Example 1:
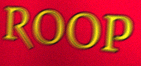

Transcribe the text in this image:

ROOP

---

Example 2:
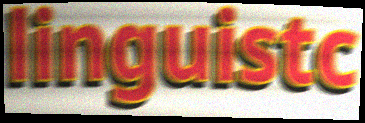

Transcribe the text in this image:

linguistc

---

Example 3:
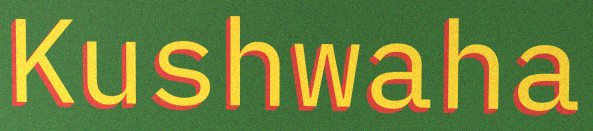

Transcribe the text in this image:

Kushwaha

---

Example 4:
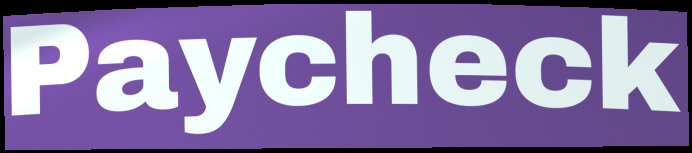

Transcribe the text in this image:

Paycheck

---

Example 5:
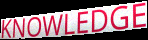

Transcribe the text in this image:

KNOWLEDGE